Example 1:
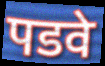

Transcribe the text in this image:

पडवे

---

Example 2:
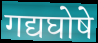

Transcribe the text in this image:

गद्यघोषे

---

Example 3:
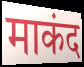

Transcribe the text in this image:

माकंद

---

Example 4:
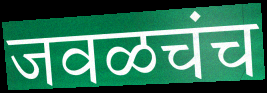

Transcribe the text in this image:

जवळचंच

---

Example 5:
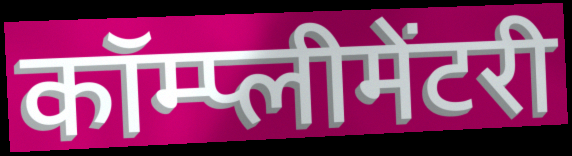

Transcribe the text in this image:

कॉम्प्लीमेंटरी